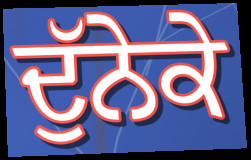
ਦੁੱਨੇਕੇ